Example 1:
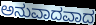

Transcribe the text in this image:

ಅನುವಾದವಾದ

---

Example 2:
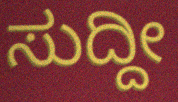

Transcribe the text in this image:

ಸುದ್ದೀ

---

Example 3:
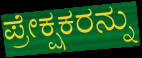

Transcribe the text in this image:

ಪ್ರೇಕ್ಷಕರನ್ನು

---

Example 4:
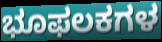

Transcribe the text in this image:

ಭೂಫಲಕಗಳ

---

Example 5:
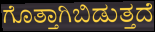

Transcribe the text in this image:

ಗೊತ್ತಾಗಿಬಿಡುತ್ತದೆ